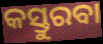
କସ୍ତୁରବା